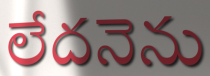
లేదనెను